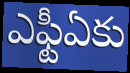
ఎఫ్టీఏకు